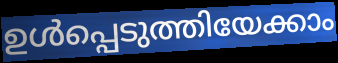
ഉൾപ്പെടുത്തിയേക്കാം